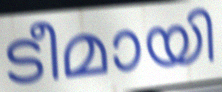
ടീമായി